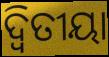
ଦ୍ୱିତୀୟା